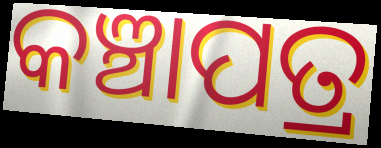
କଞ୍ଚାପତ୍ର